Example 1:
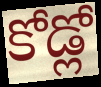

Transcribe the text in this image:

కోడ్లో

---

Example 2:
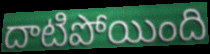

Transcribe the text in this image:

దాటిపోయింది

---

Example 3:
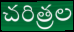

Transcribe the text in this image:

చరిత్రల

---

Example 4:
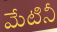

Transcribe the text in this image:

మేటినీ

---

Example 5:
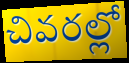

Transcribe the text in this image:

చివరల్లో